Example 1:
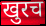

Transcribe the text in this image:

खुरच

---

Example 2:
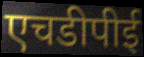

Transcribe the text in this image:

एचडीपीई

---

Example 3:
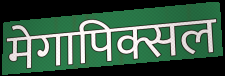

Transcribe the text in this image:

मेगापिक्सल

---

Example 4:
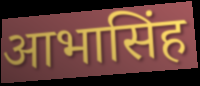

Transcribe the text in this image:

आभासिंह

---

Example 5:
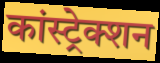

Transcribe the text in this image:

कांस्ट्रेक्शन